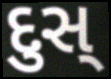
દુસ્